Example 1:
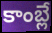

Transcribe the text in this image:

కాంబ్లే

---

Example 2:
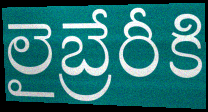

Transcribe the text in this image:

లైబ్రేరీకి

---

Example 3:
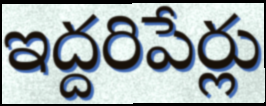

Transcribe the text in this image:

ఇద్దరిపేర్లు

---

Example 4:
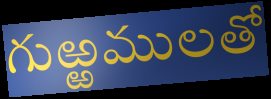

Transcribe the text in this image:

గుఱ్ఱములతో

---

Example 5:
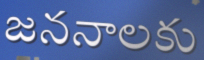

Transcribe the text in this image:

జననాలకు